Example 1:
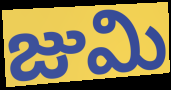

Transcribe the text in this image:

జుమి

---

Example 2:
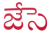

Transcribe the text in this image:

జేసె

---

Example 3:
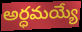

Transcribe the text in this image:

అర్ధమయ్యే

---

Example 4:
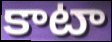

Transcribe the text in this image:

కాటా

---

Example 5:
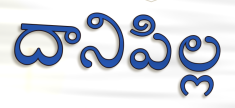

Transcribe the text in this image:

దానిపిల్ల